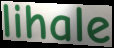
lihale